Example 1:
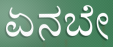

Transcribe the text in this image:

ಏನಬೇ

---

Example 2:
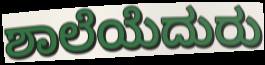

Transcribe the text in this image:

ಶಾಲೆಯೆದುರು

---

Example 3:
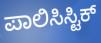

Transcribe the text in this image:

ಪಾಲಿಸಿಸ್ಟಿಕ್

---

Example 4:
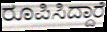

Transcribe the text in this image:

ರೂಪಿಸಿದ್ದಾರೆ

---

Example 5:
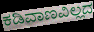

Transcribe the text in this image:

ಕಡಿವಾಣವಿಲ್ಲದ